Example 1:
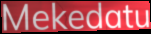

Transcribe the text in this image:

Mekedatu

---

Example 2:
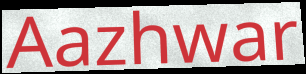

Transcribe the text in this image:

Aazhwar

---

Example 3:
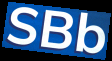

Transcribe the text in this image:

SBb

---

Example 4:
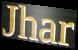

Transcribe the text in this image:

Jhar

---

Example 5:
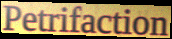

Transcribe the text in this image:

Petrifaction